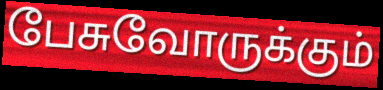
பேசுவோருக்கும்